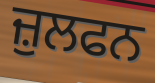
ਜ਼ੁਲਫਨ